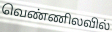
வெண்ணிலவில்